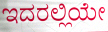
ಇದರಲ್ಲಿಯೇ